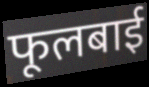
फूलबाई